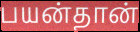
பயன்தான்